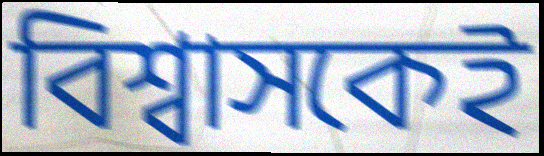
বিশ্বাসকেই